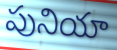
పునియా